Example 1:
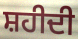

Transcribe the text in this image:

ਸ਼ਹੀਦੀ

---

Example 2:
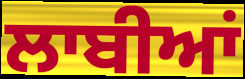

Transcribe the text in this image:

ਲਾਬੀਆਂ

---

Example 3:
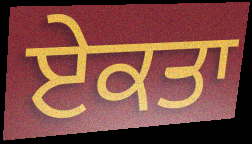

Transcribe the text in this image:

ਏਕਤਾ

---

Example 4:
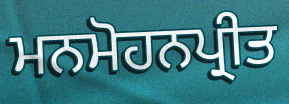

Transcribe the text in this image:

ਮਨਮੋਹਨਪ੍ਰੀਤ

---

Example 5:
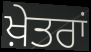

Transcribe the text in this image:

ਖ਼ੇਤਰਾਂ